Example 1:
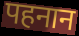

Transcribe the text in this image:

पहनान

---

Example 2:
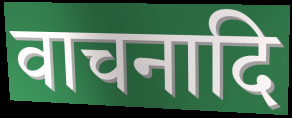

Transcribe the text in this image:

वाचनादि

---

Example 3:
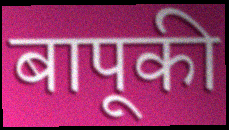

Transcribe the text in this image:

बापूकी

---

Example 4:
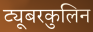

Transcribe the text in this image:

ट्यूबरकुलिन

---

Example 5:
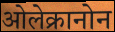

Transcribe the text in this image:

ओलेक्रानोन